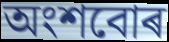
অংশবোৰ